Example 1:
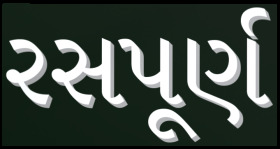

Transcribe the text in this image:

રસપૂર્ણ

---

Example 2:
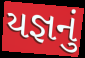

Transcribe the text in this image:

યજ્ઞનું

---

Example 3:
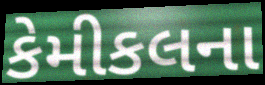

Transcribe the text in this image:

કેમીકલના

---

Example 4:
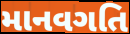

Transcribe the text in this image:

માનવગતિ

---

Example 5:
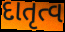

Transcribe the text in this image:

દાતૃત્વ